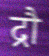
द्रौ